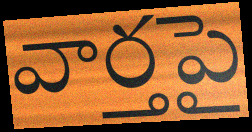
వార్తపై